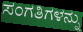
ಸಂಗತಿಗಳನ್ನು